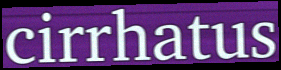
cirrhatus